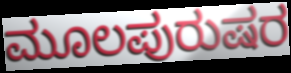
ಮೂಲಪುರುಷರ